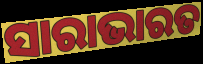
ସାରାଭାରତ